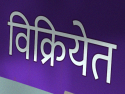
विक्रियेत